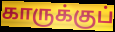
காருக்குப்